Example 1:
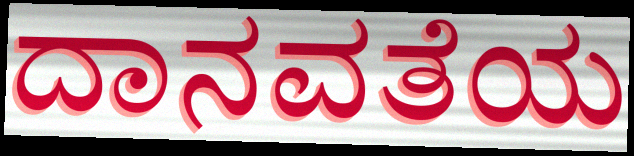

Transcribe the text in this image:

ದಾನವತೆಯ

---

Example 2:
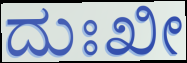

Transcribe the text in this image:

ದುಃಖೀ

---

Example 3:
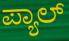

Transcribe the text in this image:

ಪ್ಯಾಲ್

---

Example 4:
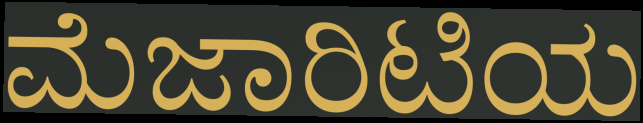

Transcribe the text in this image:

ಮೆಜಾರಿಟಿಯ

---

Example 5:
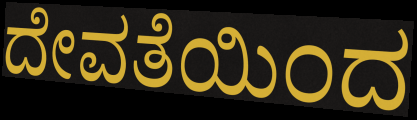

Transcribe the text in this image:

ದೇವತೆಯಿಂದ